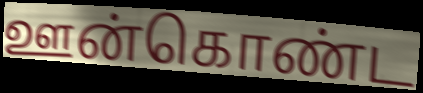
ஊன்கொண்ட